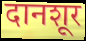
दानशूर